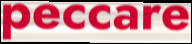
peccare